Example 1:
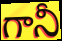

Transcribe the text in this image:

గానీ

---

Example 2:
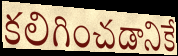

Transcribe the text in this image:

కలిగించడానికే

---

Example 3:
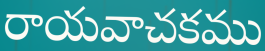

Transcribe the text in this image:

రాయవాచకము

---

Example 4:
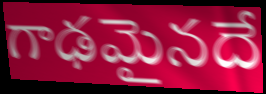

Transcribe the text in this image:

గాఢమైనదే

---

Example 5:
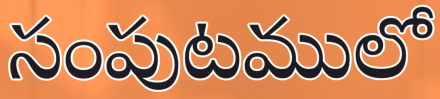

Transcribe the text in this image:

సంపుటములో